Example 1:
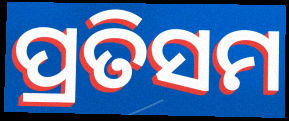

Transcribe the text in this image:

ପ୍ରତିସମ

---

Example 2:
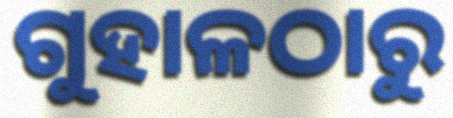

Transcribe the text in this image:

ଗୁହାଳଠାରୁ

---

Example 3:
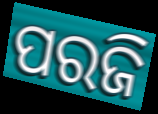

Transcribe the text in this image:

ପରଜି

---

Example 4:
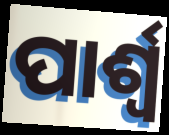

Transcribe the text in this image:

ପାର୍ଶ୍ବ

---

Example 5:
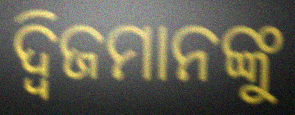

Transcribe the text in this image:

ଦ୍ୱିଜମାନଙ୍କୁ